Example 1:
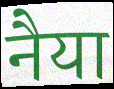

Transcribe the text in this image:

नैया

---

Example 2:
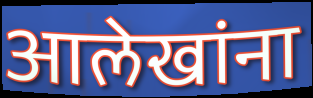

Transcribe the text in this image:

आलेखांना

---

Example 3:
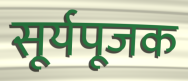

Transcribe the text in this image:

सूर्यपूजक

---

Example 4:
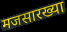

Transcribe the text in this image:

मजसारख्या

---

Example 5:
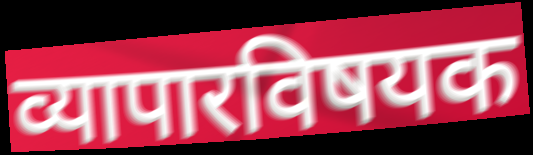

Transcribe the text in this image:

व्यापारविषयक